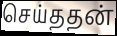
செய்ததன்